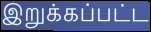
இறுக்கப்பட்ட